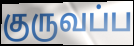
குருவப்ப